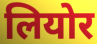
लियोर